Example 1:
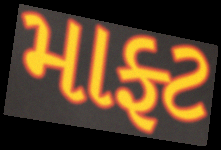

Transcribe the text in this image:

માફ્ટ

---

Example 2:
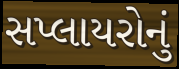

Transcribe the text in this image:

સપ્લાયરોનું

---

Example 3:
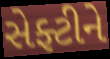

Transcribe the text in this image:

સેફ્ટીને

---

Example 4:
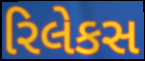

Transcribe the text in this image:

રિલેકસ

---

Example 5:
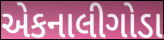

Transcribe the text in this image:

એકનાલીગોડા